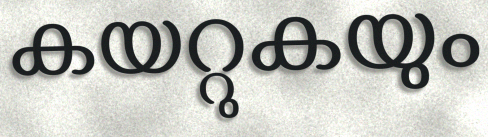
കയറ്റുകയും